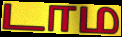
டாம